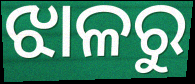
ଝାଳରୁ